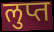
लुप्त